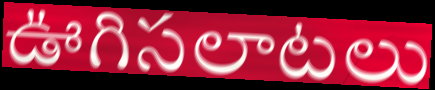
ఊగిసలాటలు